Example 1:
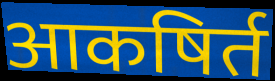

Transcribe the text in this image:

आकषिर्त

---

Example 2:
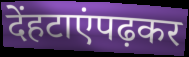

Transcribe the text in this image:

देंहटाएंपढ़कर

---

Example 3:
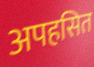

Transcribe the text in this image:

अपहसित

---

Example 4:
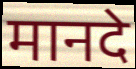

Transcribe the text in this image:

मानदे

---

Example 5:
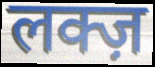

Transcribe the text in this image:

लक्ज़